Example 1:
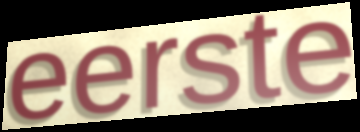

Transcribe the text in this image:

eerste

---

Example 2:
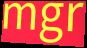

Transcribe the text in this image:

mgr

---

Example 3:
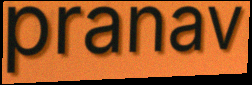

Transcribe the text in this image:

pranav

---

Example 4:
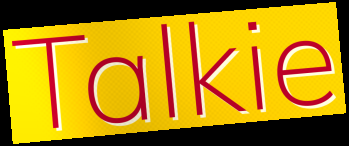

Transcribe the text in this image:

Talkie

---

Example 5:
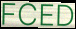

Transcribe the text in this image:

FCED